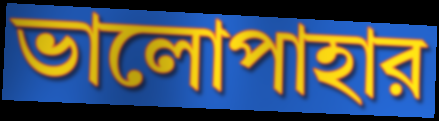
ভালোপাহার